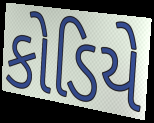
કોડિયે